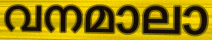
വനമാലാ